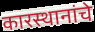
कारस्थानांचे